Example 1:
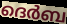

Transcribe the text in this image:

ദെർബ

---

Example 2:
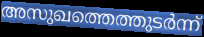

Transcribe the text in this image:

അസുഖത്തെത്തുടർന്ന്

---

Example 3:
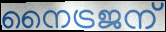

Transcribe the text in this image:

നൈട്രജന്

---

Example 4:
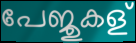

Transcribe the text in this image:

പേജുകള്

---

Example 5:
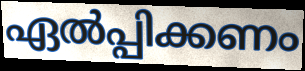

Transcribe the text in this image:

ഏൽപ്പിക്കണം